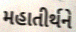
મહાતીર્થને